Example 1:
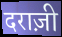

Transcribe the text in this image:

दराज़ी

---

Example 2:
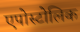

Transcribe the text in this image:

एपोस्टोलिक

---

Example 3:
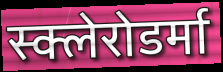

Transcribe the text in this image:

स्क्लेरोडर्मा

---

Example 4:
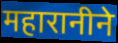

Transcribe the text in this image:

महारानीने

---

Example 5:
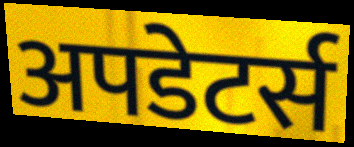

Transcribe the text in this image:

अपडेटर्स